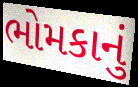
ભોમકાનું